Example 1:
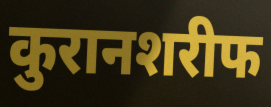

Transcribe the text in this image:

कुरानशरीफ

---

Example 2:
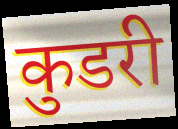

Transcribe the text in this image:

कुडरी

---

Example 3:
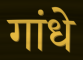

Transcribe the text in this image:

गांधे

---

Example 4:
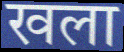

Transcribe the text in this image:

खला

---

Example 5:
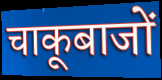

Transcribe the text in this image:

चाकूबाजों